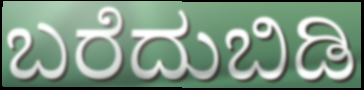
ಬರೆದುಬಿಡಿ